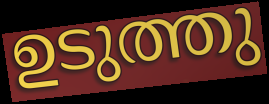
ഉടുത്തു